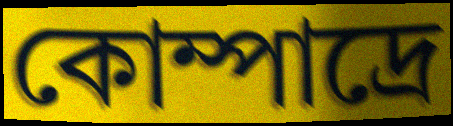
কোম্পাদ্রে